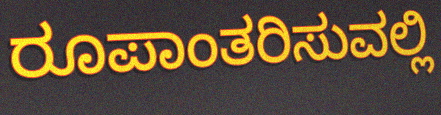
ರೂಪಾಂತರಿಸುವಲ್ಲಿ